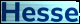
Hesse